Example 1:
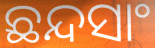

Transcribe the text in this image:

ଛନ୍ଦସାଂ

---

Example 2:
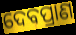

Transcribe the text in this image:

ଦେବପ୍ରାଣ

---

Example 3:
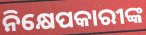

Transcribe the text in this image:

ନିକ୍ଷେପକାରୀଙ୍କ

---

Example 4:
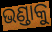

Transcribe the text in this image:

ଭଣ୍ଡାକୁ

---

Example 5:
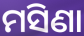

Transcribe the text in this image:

ମସିଣା